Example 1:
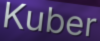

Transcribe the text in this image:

Kuber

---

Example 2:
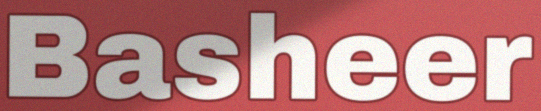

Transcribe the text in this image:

Basheer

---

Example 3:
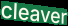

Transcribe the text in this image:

cleaver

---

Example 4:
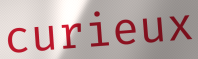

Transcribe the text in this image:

curieux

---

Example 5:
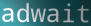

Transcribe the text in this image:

adwait